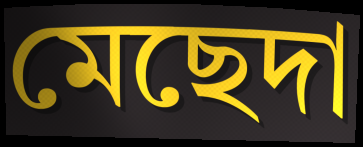
মেছেদা